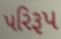
પરિરૂપ